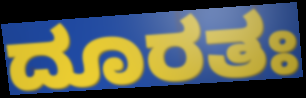
ದೂರತಃ